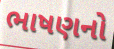
ભાષણનો